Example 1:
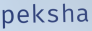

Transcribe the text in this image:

peksha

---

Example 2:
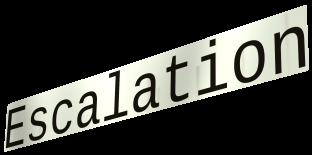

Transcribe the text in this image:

Escalation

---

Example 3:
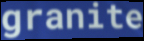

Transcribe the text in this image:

granite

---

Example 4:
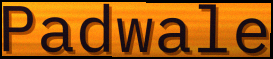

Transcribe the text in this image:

Padwale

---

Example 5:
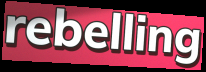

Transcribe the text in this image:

rebelling